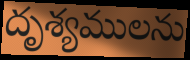
దృశ్యములను